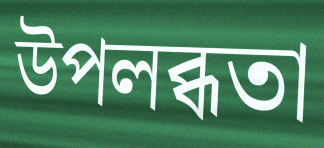
উপলব্ধতা